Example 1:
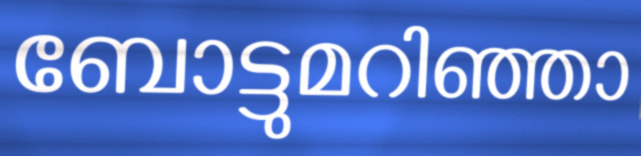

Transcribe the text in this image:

ബോട്ടുമറിഞ്ഞാ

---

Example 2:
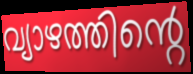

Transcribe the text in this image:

വ്യാഴത്തിന്റെ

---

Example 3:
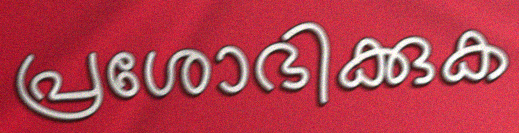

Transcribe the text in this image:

പ്രശോഭിക്കുക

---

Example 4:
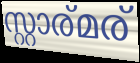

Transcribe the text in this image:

സ്റ്റാര്മര്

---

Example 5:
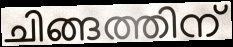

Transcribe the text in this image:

ചിങ്ങത്തിന്